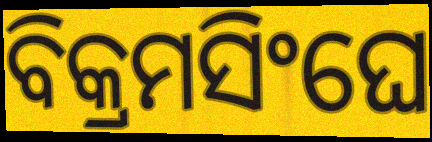
ବିକ୍ରମସିଂଘେ